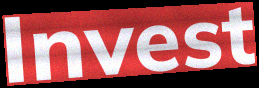
Invest